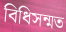
বিধিসন্মত